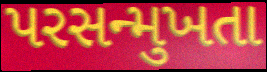
પરસન્મુખતા